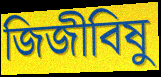
জিজীবিষু